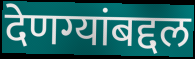
देणग्यांबद्दल